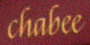
chabee